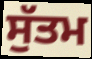
ਸੁੱਤਮ